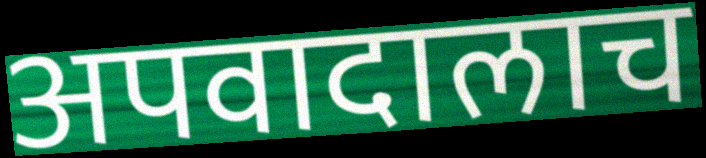
अपवादालाच